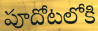
పూదోటలోకి